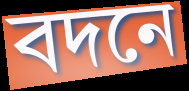
বদনে